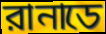
রানাডে